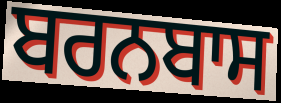
ਬਰਨਬਾਸ